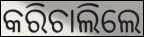
କରିଚାଲିଲେ